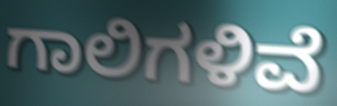
ಗಾಲಿಗಳಿವೆ